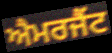
ਐਮਰਜੈਂਟ